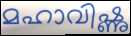
മഹാവിഷ്ണു